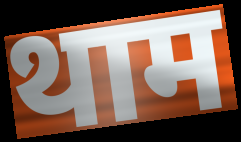
थाम